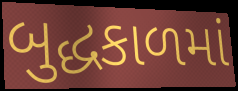
બુદ્ધકાળમાં